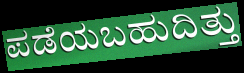
ಪಡೆಯಬಹುದಿತ್ತು